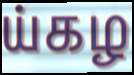
ய்கழ